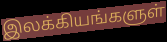
இலக்கியங்களுள்